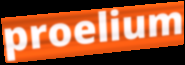
proelium